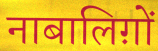
नाबालिग़ों